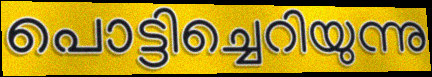
പൊട്ടിച്ചെറിയുന്നു